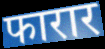
फारार